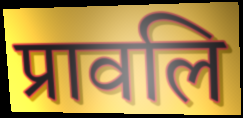
प्रावलि